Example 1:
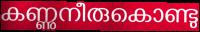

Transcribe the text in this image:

കണ്ണുനീരുകൊണ്ടു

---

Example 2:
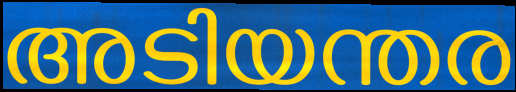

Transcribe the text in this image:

അടിയന്തര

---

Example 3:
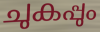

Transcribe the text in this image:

ചുകപ്പും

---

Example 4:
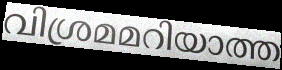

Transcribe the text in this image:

വിശ്രമമറിയാത്ത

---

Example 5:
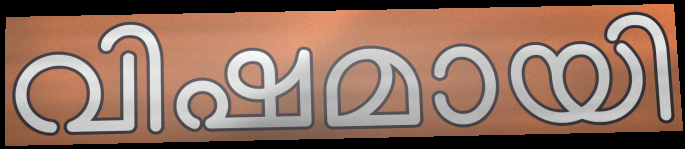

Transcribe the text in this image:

വിഷമായി